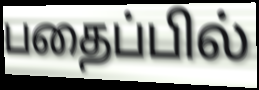
பதைப்பில்